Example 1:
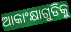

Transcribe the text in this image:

ଆକାଂକ୍ଷାଗୁଡିକୁ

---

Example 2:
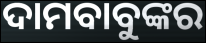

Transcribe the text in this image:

ଦାମବାବୁଙ୍କର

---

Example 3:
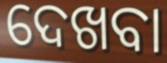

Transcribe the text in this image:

ଦେଖବା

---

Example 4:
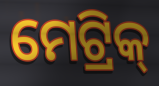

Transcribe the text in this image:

ମେଟ୍ରିକ୍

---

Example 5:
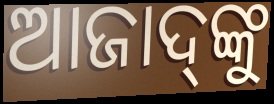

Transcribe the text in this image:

ଆଜାଦ୍‌ଙ୍କୁ